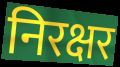
निरक्षर